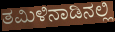
ತಮಿಳಿನಾಡಿನಲ್ಲಿ